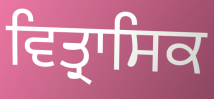
ਵਿਤ੍ਰਾਸਿਕ